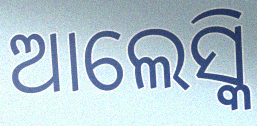
ଆଲେସ୍କି